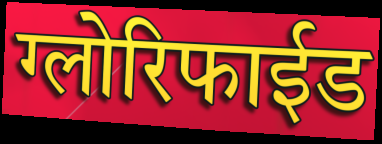
ग्लोरिफाईड